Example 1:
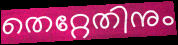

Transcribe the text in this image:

തെറ്റേതിനും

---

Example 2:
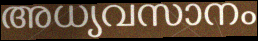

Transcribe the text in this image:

അധ്യവസാനം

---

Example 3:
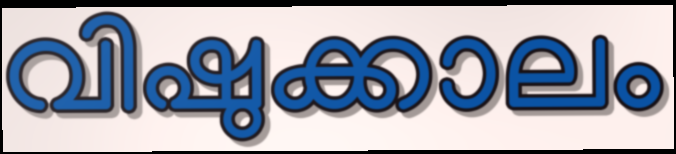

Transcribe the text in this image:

വിഷുക്കാലം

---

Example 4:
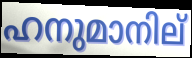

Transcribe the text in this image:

ഹനുമാനില്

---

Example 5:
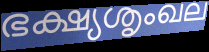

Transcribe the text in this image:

ഭക്ഷ്യശൃംഖല